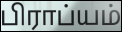
பிராப்யம்